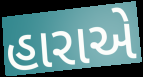
હારાએ